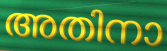
അതിനാ